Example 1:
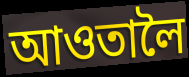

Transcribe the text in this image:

আওতালৈ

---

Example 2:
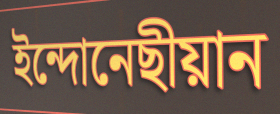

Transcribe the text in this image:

ইন্দোনেছীয়ান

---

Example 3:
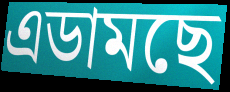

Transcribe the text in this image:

এডামছে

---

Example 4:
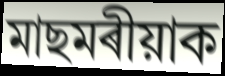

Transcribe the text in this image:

মাছমৰীয়াক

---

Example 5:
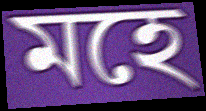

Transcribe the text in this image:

মহে